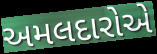
અમલદારોએ